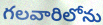
గలవారిలోను